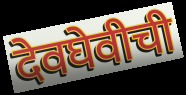
देवघेवीची